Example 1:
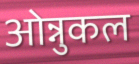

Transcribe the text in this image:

ओन्नुकल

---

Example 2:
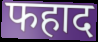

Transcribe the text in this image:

फहाद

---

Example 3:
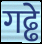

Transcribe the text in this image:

गढ्ढे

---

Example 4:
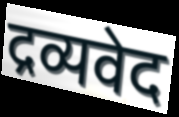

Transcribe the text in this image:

द्रव्यवेद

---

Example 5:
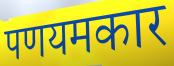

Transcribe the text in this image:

पणयमकार